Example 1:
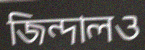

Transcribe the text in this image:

জিন্দালও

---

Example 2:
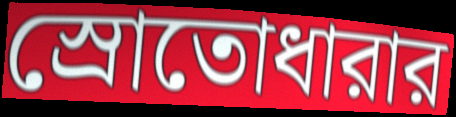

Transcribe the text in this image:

স্রোতোধারার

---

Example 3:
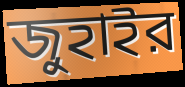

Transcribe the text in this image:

জুহাইর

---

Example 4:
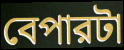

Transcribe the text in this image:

বেপারটা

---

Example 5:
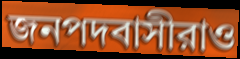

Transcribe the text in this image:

জনপদবাসীরাও